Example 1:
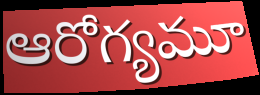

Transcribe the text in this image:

ఆరోగ్యమూ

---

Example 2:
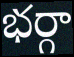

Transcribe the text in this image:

భర్గా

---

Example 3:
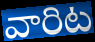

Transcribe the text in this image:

వారిట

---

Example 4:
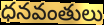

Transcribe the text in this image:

ధనవంతులు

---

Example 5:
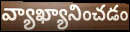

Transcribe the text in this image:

వ్యాఖ్యానించడం